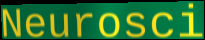
Neurosci